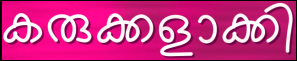
കരുക്കളാക്കി